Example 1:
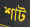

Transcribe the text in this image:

শাট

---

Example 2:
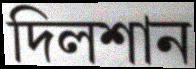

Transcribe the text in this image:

দিলশান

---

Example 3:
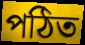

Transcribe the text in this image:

পঠিত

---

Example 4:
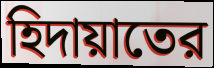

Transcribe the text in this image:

হিদায়াতের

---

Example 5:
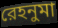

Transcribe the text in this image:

রেহনুমা